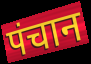
पंचान